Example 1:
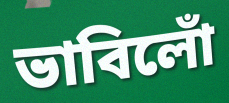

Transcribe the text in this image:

ভাবিলোঁ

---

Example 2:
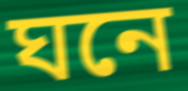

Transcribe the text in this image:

ঘনে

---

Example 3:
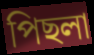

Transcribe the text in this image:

পিছলা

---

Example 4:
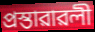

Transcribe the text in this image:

প্ৰস্তাৱাৱলী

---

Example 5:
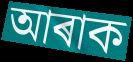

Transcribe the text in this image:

আৰাক